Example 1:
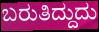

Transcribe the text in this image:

ಬರುತಿದ್ದುದು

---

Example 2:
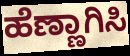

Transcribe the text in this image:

ಹೆಣ್ಣಾಗಿಸಿ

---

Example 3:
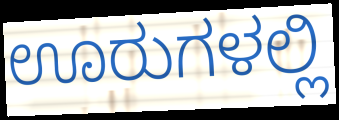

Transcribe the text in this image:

ಊರುಗಳಲ್ಲಿ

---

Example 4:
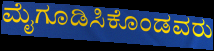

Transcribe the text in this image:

ಮೈಗೂಡಿಸಿಕೊಂಡವರು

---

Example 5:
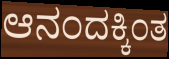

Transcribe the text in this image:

ಆನಂದಕ್ಕಿಂತ